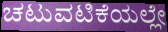
ಚಟುವಟಿಕೆಯಲ್ಲೇ